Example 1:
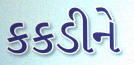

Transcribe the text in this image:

કકડીને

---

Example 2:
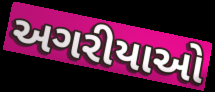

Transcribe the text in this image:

અગરીયાઓ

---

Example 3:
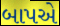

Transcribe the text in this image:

બાપએ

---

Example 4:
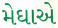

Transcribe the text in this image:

મેઘાએ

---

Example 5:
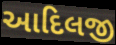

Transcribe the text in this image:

આદિલજી